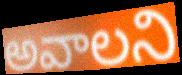
అవాలని